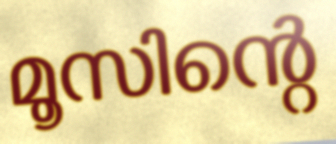
മൂസിന്റെ